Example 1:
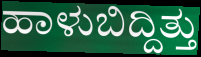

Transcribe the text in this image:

ಹಾಳುಬಿದ್ದಿತ್ತು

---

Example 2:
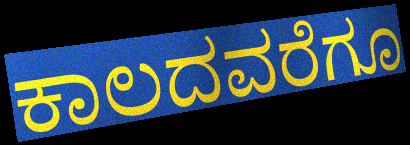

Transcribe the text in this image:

ಕಾಲದವರೆಗೂ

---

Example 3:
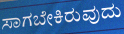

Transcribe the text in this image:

ಸಾಗಬೇಕಿರುವುದು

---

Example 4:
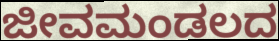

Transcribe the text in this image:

ಜೀವಮಂಡಲದ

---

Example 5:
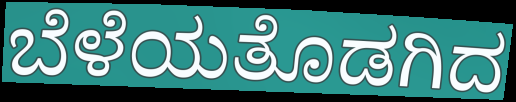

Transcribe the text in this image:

ಬೆಳೆಯತೊಡಗಿದ